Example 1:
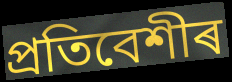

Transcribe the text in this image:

প্ৰতিবেশীৰ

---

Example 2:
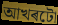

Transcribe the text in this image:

আখৰটো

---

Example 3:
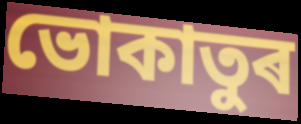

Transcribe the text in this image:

ভোকাতুৰ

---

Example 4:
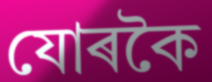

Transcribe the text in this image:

যোৰকৈ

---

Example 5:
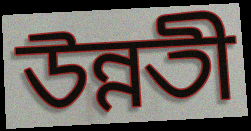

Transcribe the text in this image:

উন্নতী